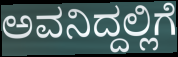
ಅವನಿದ್ದಲ್ಲಿಗೆ